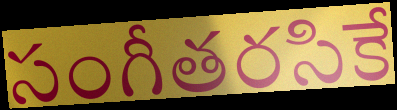
సంగీతరసికే